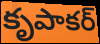
కృపాకర్